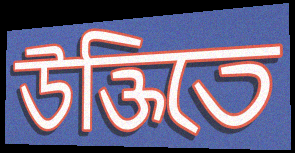
উক্তিতে